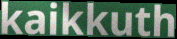
kaikkuth